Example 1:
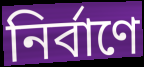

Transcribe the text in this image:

নির্বাণে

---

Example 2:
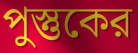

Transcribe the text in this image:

পুস্তুকের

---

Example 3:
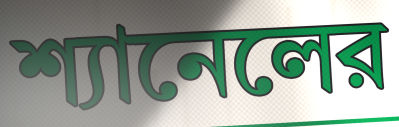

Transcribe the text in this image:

শ্যানেলের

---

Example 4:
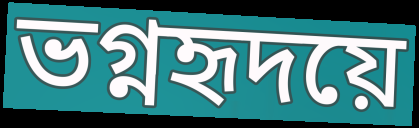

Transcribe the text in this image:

ভগ্নহৃদয়ে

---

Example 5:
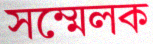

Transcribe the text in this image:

সম্মেলক